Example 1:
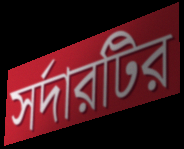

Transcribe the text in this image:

সর্দারটির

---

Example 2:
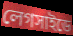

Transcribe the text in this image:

লেগসাইডে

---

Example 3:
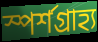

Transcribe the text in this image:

স্পর্শগ্রাহ্য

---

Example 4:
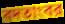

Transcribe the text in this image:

বদতাংবর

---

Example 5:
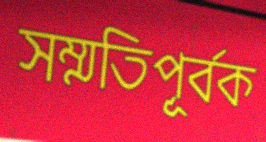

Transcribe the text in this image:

সম্মতিপূর্বক